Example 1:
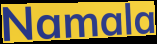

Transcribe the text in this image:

Namala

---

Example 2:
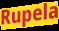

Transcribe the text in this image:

Rupela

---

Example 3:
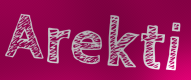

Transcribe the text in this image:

Arekti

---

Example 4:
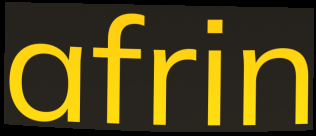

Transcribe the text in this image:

afrin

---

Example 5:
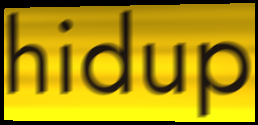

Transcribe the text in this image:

hidup